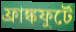
ফ্রাঙ্কফুর্টে